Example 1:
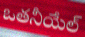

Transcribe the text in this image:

ఒతనీయేల్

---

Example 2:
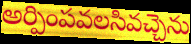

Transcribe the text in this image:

అర్పింపవలసివచ్చెను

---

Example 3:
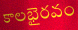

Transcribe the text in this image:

కాలభైరవం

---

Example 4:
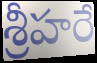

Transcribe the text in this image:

శ్రీహరే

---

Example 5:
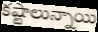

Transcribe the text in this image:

కష్టాలున్నాయి